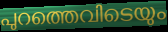
പുറത്തെവിടെയും